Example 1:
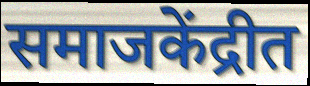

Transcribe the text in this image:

समाजकेंद्रीत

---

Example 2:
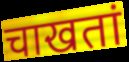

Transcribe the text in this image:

चाखतां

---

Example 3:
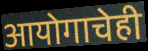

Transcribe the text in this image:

आयोगाचेही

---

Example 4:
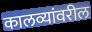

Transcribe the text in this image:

कालव्यांवरील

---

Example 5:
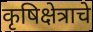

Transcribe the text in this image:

कृषिक्षेत्राचे